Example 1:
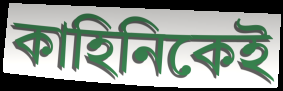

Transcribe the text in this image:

কাহিনিকেই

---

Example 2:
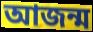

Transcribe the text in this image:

আজন্ম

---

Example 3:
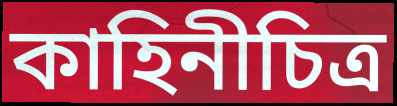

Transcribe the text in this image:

কাহিনীচিত্র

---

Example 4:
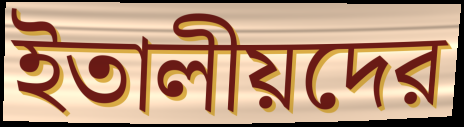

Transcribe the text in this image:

ইতালীয়দের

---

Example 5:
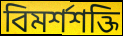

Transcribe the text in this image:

বিমর্শশক্তি